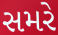
સમરે